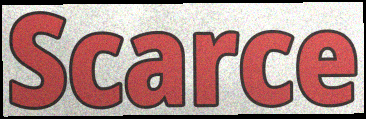
Scarce